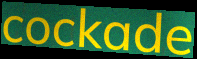
cockade